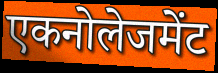
एकनोलेजमेंट